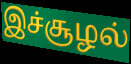
இச்சூழல்